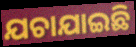
ଯଚାଯାଇଛି